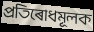
প্ৰতিৰোধমূলক